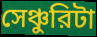
সেঞ্চুরিটা